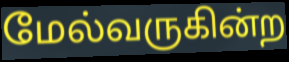
மேல்வருகின்ற